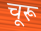
चूरू